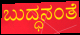
ಬುದ್ಧನಂತೆ